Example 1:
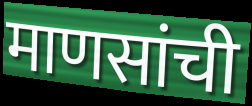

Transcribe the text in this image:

माणसांची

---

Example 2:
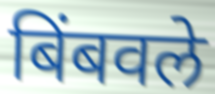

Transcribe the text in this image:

बिंबवले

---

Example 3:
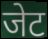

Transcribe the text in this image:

जेट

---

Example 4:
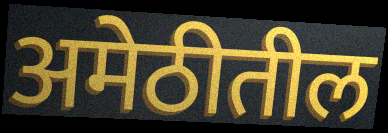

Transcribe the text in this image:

अमेठीतील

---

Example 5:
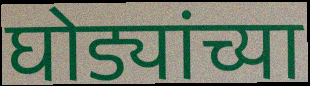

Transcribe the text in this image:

घोड्यांच्या